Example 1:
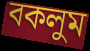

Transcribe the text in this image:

বকলুম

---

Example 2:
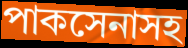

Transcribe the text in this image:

পাকসেনাসহ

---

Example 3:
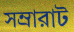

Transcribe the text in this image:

সম্রারাট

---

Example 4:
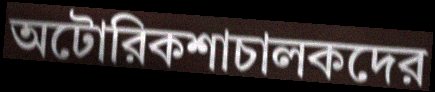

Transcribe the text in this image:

অটোরিকশাচালকদের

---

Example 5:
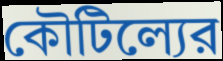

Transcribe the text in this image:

কৌটিল্যের